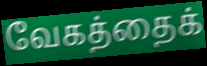
வேகத்தைக்